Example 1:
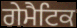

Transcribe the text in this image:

ਗੇਮੈਟਿਕ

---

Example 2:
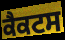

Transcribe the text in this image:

ਕੈਕਟਸ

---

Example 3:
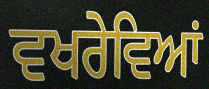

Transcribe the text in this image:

ਵਖਰੇਵਿਆਂ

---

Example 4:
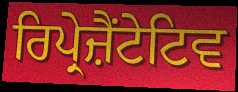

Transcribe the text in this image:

ਰਿਪ੍ਰੇਜ਼ੈਂਟੇਟਿਵ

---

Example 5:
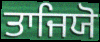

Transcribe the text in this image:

ਤਾਜਿਯੋ